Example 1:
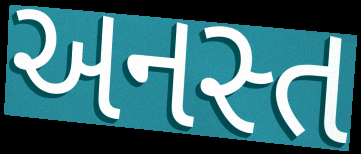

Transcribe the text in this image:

અનસ્ત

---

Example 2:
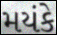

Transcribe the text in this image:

મયંકે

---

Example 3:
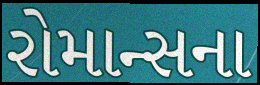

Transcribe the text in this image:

રોમાન્સના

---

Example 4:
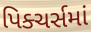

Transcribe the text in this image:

પિક્ચર્સમાં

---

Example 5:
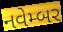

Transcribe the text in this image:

નવેમ્બર